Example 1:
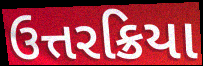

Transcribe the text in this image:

ઉત્તરક્રિયા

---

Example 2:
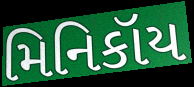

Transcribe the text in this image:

મિનિકૉય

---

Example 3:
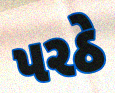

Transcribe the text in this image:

પરઠે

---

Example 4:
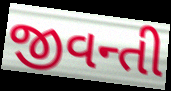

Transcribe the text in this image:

જીવન્તી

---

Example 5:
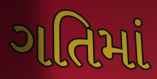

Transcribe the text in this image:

ગતિમાં